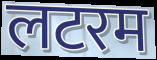
लटरम